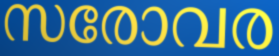
സരോവര